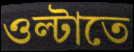
ওল্টাতে